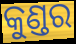
କୁଣ୍ଡର